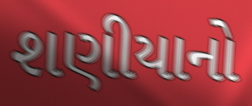
શણીયાનો